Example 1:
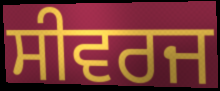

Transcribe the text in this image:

ਸੀਵਰਜ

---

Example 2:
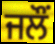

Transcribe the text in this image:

ਜਲੌਂ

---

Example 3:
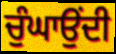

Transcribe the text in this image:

ਚੁੰਘਾਉਂਦੀ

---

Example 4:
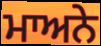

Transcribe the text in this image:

ਮਾਅਨੇ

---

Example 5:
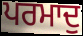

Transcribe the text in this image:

ਪਰਮਾਦੁ